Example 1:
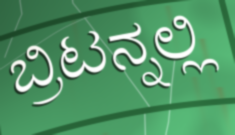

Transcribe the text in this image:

ಬ್ರಿಟನ್ನಲ್ಲಿ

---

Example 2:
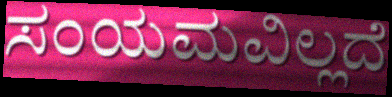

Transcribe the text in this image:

ಸಂಯಮವಿಲ್ಲದೆ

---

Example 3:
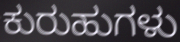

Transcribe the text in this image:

ಕುರುಹುಗಳು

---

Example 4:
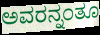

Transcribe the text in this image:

ಅವರನ್ನಂತೂ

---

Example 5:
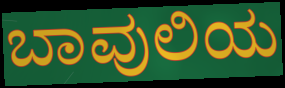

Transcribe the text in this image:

ಬಾವುಲಿಯ